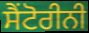
ਸੈਂਟੋਰੀਨੀ